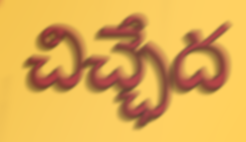
చిచ్ఛేద